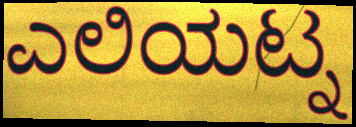
ಎಲಿಯಟ್ನ